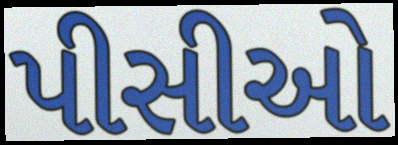
પીસીઓ